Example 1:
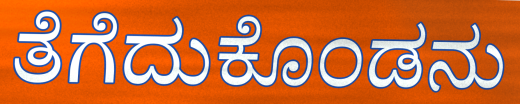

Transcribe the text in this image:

ತೆಗೆದುಕೊಂಡನು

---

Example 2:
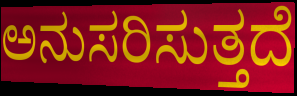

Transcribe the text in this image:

ಅನುಸರಿಸುತ್ತದೆ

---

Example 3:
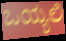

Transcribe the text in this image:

ಒಯ್ಯಲಿ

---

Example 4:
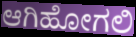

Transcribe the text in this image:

ಆಗಿಹೋಗಲಿ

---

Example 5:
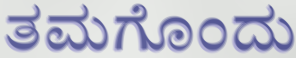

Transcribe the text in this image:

ತಮಗೊಂದು